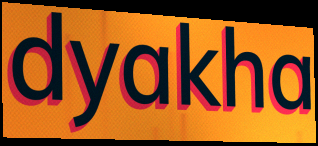
dyakha